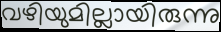
വഴിയുമില്ലായിരുന്നു